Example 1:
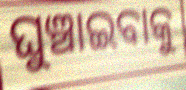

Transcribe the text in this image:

ଘୁଞ୍ଚାଇବାକୁ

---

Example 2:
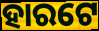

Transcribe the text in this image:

ହାରଟେ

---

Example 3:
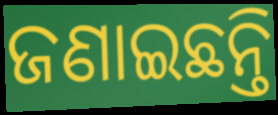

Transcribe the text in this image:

ଜଣାଇଛନ୍ତି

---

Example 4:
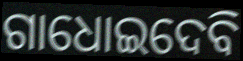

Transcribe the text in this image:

ଗାଧୋଇଦେବି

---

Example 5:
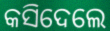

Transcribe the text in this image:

କସିଦେଲେ